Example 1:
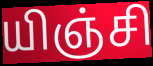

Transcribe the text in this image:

யிஞ்சி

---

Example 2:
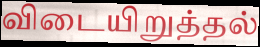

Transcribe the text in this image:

விடையிறுத்தல்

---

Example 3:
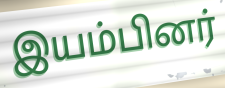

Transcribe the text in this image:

இயம்பினர்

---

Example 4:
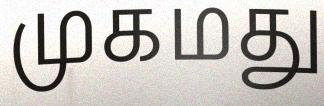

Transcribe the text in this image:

முகமது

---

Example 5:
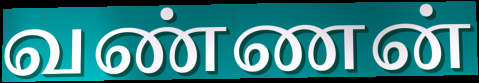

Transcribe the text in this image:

வண்ணன்